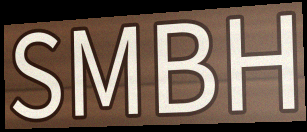
SMBH